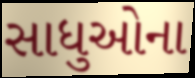
સાધુઓના